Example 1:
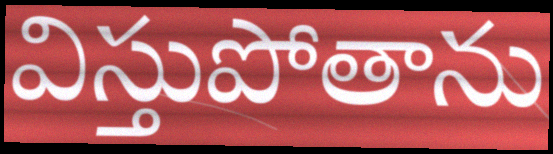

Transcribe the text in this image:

విస్తుపోతాను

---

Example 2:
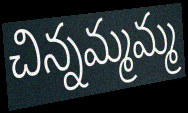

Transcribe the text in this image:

చిన్నమ్మమ్మ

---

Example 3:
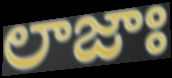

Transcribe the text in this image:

లాజాః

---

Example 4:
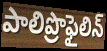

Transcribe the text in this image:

పాలిప్రొఫైలిన్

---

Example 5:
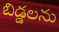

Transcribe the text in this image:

బిడ్డలను